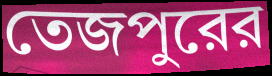
তেজপুরের